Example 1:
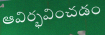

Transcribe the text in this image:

ఆవిర్భవించడం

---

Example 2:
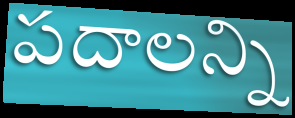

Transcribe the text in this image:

పదాలన్ని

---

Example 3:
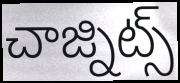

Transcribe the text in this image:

చాజ్నిట్స్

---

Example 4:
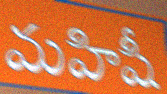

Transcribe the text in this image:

మహిషీ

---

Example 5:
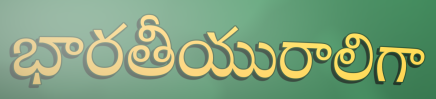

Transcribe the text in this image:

భారతీయురాలిగా